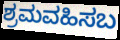
ಶ್ರಮವಹಿಸಬ